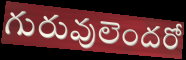
గురువులెందరో